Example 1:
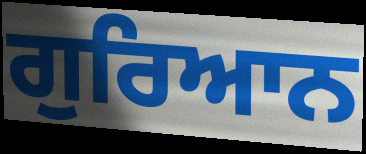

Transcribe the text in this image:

ਗੁਰਿਆਨ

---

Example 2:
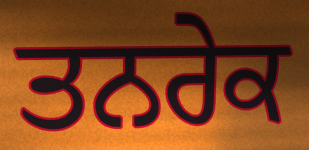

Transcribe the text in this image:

ਤਨਰੇਕ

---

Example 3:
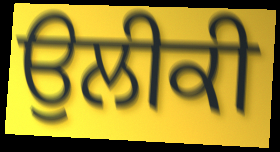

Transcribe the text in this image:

ਉਲੀਕੀ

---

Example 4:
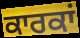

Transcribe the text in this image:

ਕਾਰਕਾਂ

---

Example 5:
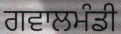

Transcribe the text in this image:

ਗਵਾਲਮੰਡੀ